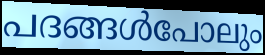
പദങ്ങൾപോലും